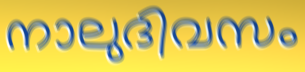
നാലുദിവസം